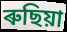
ৰুছিয়া